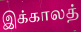
இக்காலத்